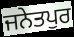
ਜਨੇਤਪੁਰ